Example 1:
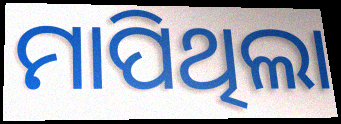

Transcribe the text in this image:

ମାପିଥିଲା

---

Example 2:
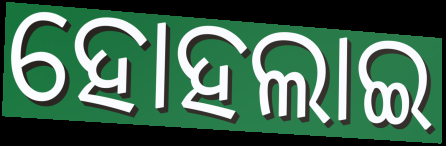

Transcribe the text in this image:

ହୋହଲାଇ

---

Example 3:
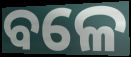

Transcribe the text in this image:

ବଳେ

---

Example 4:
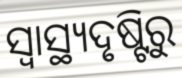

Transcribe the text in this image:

ସ୍ୱାସ୍ଥ୍ୟଦୃଷ୍ଟିରୁ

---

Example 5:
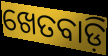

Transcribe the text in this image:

ଖେତବାଡ଼ି